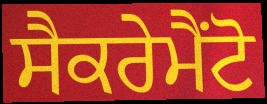
ਸੈਕਰੇਮੈਂਟੋ